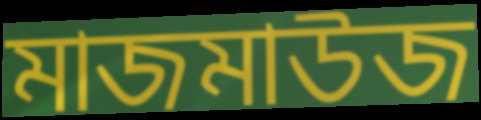
মাজমাউজ